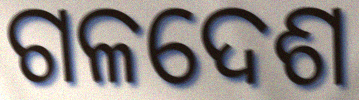
ଗଳଦେଶ